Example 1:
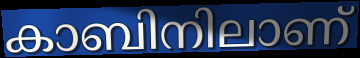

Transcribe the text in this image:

കാബിനിലാണ്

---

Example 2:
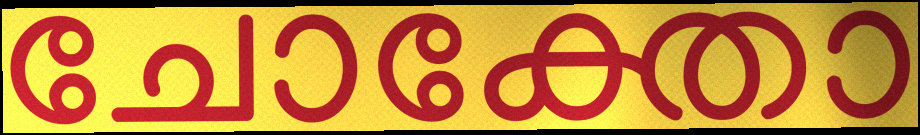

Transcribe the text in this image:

ചോക്തോ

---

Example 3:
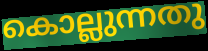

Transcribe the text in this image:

കൊല്ലുന്നതു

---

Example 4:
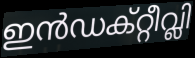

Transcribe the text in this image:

ഇൻഡക്റ്റീവ്ലി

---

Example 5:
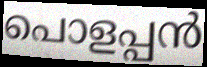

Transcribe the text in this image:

പൊളപ്പൻ